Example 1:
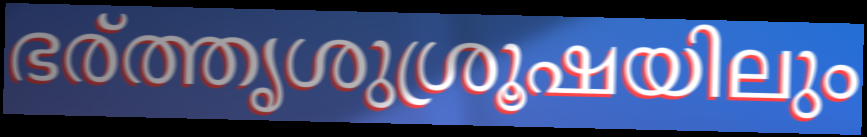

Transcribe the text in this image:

ഭര്ത്തൃശുശ്രൂഷയിലും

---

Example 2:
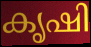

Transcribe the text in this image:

കൃഷി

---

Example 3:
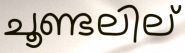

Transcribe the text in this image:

ചൂണ്ടലില്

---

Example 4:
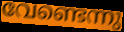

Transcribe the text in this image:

വേണ്ടെന്നു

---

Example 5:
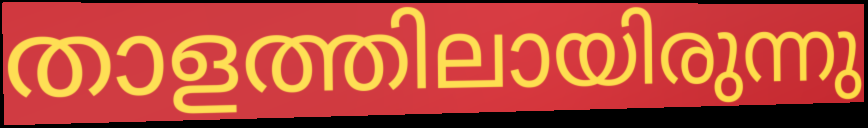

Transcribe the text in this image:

താളത്തിലായിരുന്നു